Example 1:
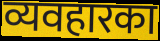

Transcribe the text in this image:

व्यवहारका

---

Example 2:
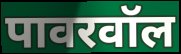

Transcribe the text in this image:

पावरवॉल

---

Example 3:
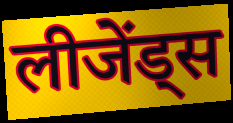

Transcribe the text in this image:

लीजेंड्स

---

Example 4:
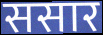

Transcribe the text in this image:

ससार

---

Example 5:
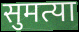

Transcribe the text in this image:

सुमत्या